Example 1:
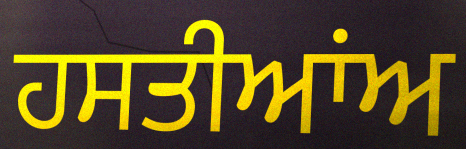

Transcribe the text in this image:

ਹਸਤੀਆਂਅ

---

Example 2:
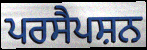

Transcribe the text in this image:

ਪਰਸੈਪਸ਼ਨ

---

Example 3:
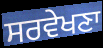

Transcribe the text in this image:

ਸਰਵੇਖਣਾ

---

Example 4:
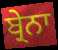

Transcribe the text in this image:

ਬ੍ਰੇਨਾ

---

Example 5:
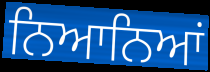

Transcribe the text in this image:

ਨਿਆਨਿਆਂ